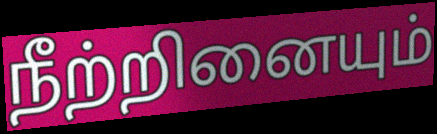
நீற்றினையும்